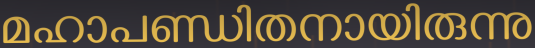
മഹാപണ്ഡിതനായിരുന്നു